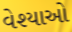
વેશ્યાઓ